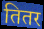
तितर